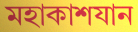
মহাকাশযান